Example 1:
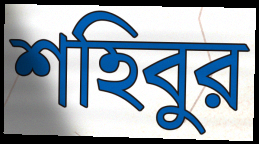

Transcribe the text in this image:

শহিবুর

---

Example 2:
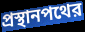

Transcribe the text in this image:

প্রস্থানপথের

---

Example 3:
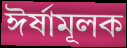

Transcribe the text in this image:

ঈর্ষামূলক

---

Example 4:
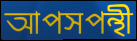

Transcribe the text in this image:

আপসপন্থী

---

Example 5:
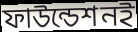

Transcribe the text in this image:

ফাউন্ডেশনই